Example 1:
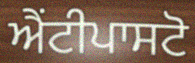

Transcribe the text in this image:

ਐਂਟੀਪਾਸਟੋ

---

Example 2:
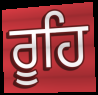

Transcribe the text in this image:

ਰੂਹਿ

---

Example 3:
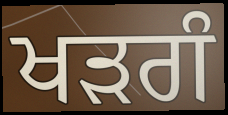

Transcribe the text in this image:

ਖੜਗੰ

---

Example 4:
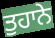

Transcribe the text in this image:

ਤੁਹਾਨੇ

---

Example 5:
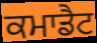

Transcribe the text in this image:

ਕਮਾਡੈਟ